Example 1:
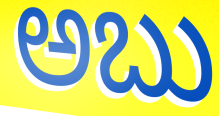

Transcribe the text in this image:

ಅಬು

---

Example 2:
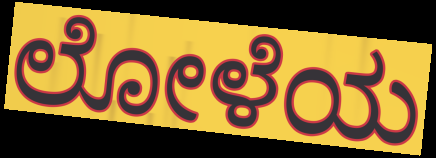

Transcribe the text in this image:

ಲೋಳೆಯ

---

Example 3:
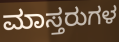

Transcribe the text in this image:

ಮಾಸ್ತರುಗಳ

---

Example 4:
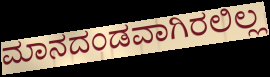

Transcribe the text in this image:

ಮಾನದಂಡವಾಗಿರಲಿಲ್ಲ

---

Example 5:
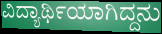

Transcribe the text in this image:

ವಿದ್ಯಾರ್ಥಿಯಾಗಿದ್ದನು